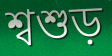
শ্বশুড়